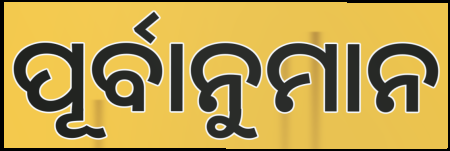
ପୂର୍ବାନୁମାନ